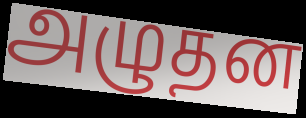
அழுதன